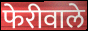
फेरीवाले